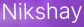
Nikshay